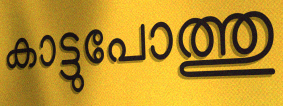
കാട്ടുപോത്തു